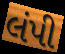
લંપી